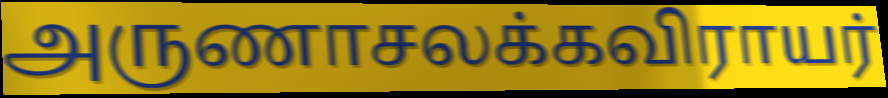
அருணாசலக்கவிராயர்